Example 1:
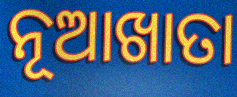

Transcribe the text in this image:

ନୂଆଖାତା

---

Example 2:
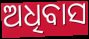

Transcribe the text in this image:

ଅଧିବାସ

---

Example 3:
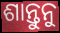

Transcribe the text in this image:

ଶାନ୍ତୁନୁ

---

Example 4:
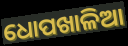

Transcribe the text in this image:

ଧୋପଖାଳିଆ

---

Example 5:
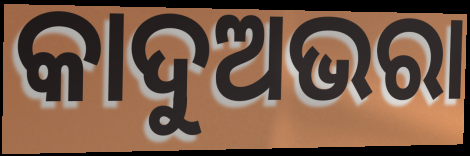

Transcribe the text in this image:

କାଦୁଅଭରା